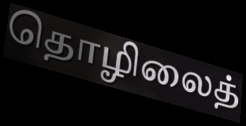
தொழிலைத்